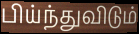
பிய்ந்துவிடும்